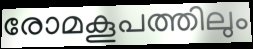
രോമകൂപത്തിലും